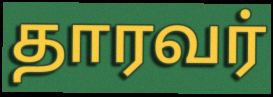
தாரவர்